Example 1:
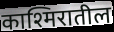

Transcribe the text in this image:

काश्मिरातील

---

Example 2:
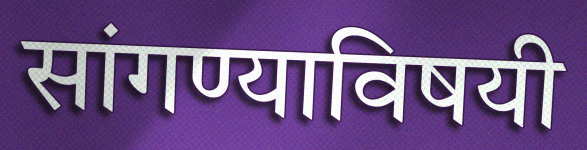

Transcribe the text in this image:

सांगण्याविषयी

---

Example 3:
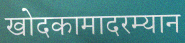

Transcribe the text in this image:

खोदकामादरम्यान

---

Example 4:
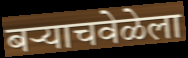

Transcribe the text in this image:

बर्‍याचवेळेला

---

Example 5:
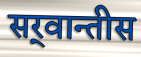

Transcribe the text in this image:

सर्वान्तीस